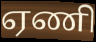
ஏணி